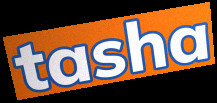
tasha